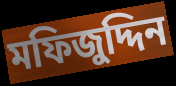
মফিজুদ্দিন